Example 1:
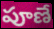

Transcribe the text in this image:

పూణే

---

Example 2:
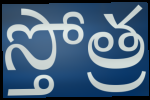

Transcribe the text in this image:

స్తోత్ర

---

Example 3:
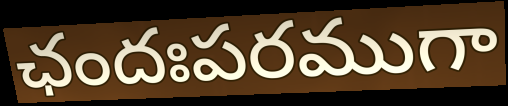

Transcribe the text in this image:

ఛందఃపరముగా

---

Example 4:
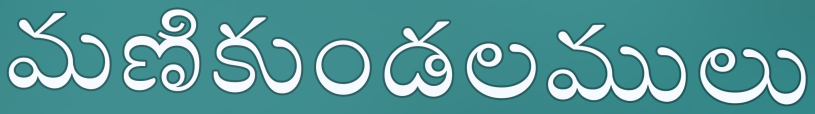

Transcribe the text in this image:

మణికుండలములు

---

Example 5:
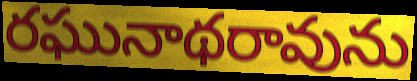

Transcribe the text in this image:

రఘునాథరావును